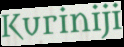
Kuriniji